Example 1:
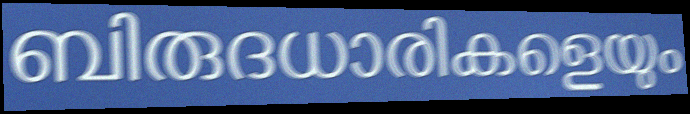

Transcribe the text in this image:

ബിരുദധാരികളെയും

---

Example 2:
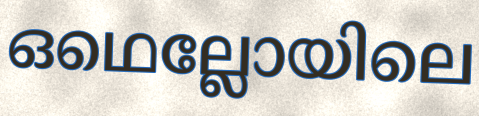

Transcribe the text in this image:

ഒഥെല്ലോയിലെ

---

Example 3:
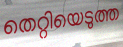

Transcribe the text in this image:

തെറ്റിയെടുത്ത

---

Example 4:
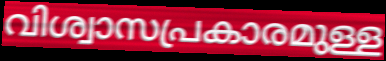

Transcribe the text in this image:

വിശ്വാസപ്രകാരമുള്ള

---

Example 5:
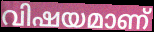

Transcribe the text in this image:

വിഷയമാണ്